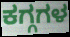
ಕಗ್ಗಗಳ